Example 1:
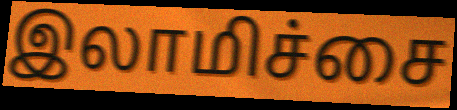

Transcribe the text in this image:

இலாமிச்சை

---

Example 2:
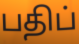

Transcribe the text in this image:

பதிப்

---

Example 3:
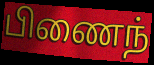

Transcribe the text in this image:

பிணைந்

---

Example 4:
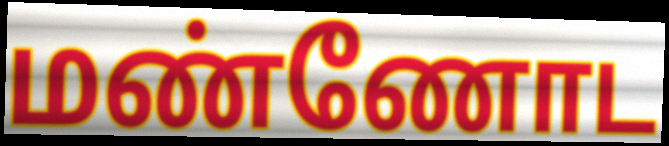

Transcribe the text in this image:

மண்ணோட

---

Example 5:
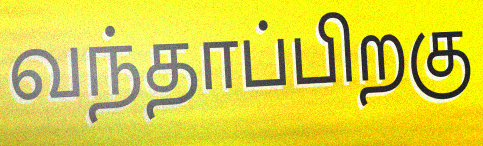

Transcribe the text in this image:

வந்தாப்பிறகு